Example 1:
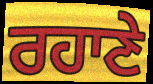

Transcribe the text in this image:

ਰਹਾਣੇ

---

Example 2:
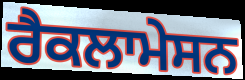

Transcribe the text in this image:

ਰੈਕਲਾਮੇਸਨ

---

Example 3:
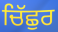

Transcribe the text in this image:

ਚਿੱਛੁਰ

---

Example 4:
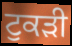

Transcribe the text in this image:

ਟੁਕਡ਼ੀ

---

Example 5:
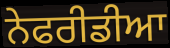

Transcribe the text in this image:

ਨੇਫਰੀਡੀਆ